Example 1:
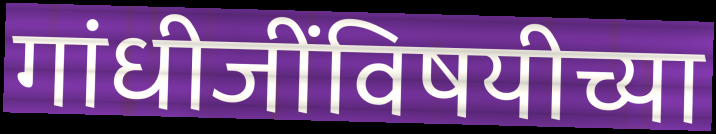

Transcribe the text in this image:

गांधीजींविषयीच्या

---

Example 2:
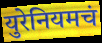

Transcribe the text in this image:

युरेनियमचं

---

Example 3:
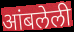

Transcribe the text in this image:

आंबलेली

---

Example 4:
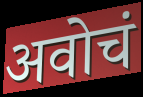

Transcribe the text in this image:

अवोचं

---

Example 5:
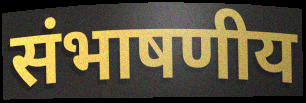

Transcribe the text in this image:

संभाषणीय